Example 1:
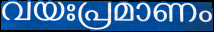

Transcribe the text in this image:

വയഃപ്രമാണം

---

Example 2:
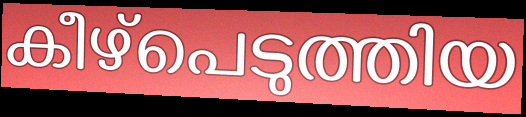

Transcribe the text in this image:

കീഴ്പെടുത്തിയ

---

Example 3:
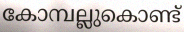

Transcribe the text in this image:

കോമ്പല്ലുകൊണ്ട്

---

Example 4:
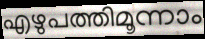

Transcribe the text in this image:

എഴുപത്തിമൂന്നാം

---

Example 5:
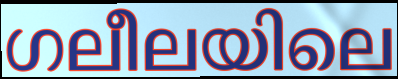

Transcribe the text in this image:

ഗലീലയിലെ